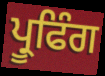
ਪ੍ਰੂਫਿੰਗ